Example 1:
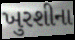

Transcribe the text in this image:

ખુરશીના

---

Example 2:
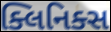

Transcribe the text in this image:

ક્લિનિક્સ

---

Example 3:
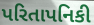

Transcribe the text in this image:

પરિતાપનિકી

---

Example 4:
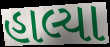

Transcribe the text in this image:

હાલ્યા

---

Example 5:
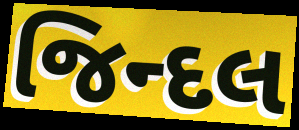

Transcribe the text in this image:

જિન્દલ